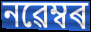
নৱেম্বৰ